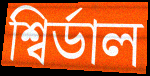
শ্বিৰ্ডাল